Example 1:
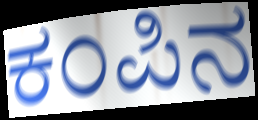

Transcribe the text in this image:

ಕಂಪಿನ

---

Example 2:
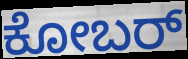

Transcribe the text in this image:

ಕೋಬರ್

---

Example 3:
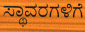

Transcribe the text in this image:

ಸ್ಥಾವರಗಳಿಗೆ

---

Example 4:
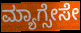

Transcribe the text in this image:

ಮ್ಯಾಗ್ಸೇಸೇ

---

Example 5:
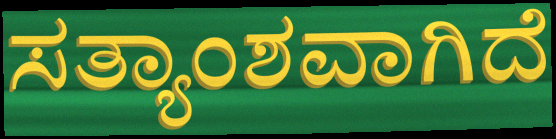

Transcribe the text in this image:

ಸತ್ಯಾಂಶವಾಗಿದೆ